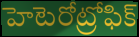
హెటెరోట్రోఫిక్